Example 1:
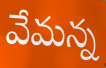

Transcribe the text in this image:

వేమన్న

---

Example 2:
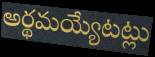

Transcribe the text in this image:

అర్థమయ్యేటట్లు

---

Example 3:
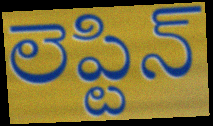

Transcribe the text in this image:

లెప్టిన్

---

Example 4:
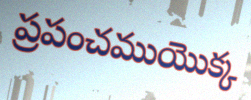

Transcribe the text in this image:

ప్రపంచముయొక్క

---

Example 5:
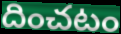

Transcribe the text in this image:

దించటం